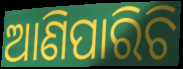
ଆଣିପାରିଚି